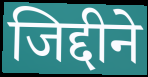
जिद्दीने